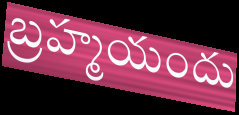
బ్రహ్మయందు